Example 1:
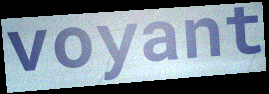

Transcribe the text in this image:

voyant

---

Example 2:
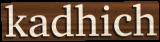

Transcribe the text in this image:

kadhich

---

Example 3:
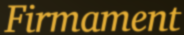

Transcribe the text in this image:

Firmament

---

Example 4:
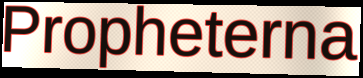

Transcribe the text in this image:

Propheterna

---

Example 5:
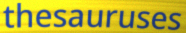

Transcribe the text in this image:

thesauruses